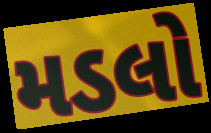
મડલો